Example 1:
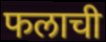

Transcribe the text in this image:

फलाची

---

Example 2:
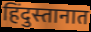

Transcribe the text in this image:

हिंदुस्तानात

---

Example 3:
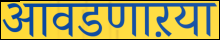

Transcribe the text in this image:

आवडणाऱया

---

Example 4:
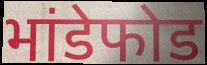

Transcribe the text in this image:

भांडेफोड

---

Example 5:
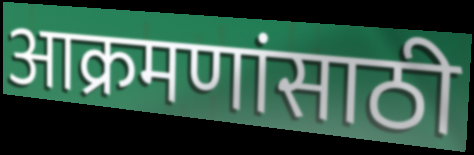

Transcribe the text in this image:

आक्रमणांसाठी